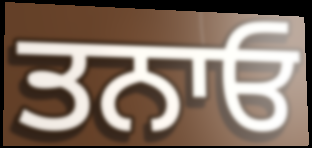
ਤਨਾਓ